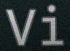
Vi